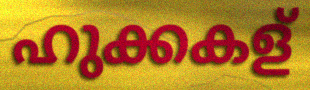
ഹുക്കകള്